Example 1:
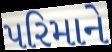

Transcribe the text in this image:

પરિમાને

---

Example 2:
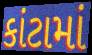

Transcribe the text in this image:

કાંટામાં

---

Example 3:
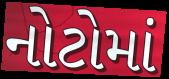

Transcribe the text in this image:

નોટોમાં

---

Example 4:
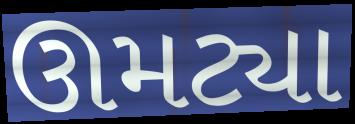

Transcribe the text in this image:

ઊમટ્યા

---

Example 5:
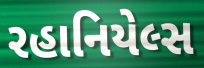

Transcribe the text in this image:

રહાનિયેલ્સ